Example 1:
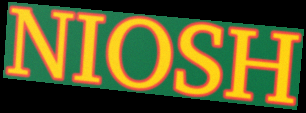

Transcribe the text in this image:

NIOSH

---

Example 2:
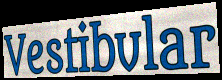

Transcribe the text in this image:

Vestibular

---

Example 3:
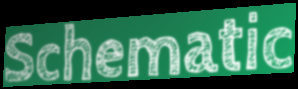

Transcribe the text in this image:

Schematic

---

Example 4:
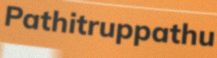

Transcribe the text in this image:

Pathitruppathu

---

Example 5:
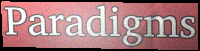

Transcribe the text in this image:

Paradigms